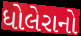
ધોલેરાનો